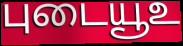
புடையூஉ